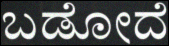
ಬಡೋದೆ